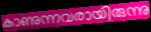
കാണുന്നവരായിരുന്നു